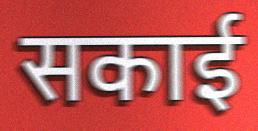
सकाई